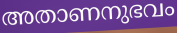
അതാണനുഭവം